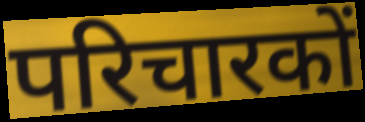
परिचारकों